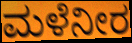
ಮಳೆನೀರ